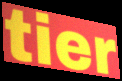
tier